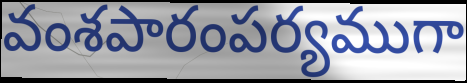
వంశపారంపర్యముగా